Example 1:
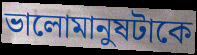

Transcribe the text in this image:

ভালোমানুষটাকে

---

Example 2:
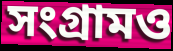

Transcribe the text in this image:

সংগ্রামও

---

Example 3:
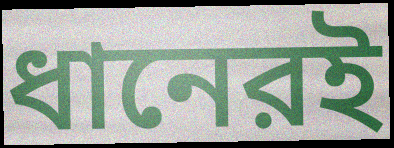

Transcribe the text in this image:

ধানেরই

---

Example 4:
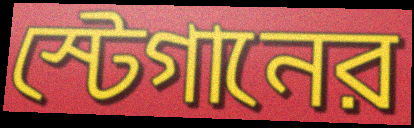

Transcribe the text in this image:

স্টেগানের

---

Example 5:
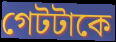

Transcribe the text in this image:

গেটটাকে